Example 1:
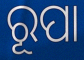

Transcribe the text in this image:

ରୂପା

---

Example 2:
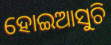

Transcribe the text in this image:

ହୋଇଆସୁଚି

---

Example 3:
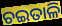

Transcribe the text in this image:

ଚଇତାଳି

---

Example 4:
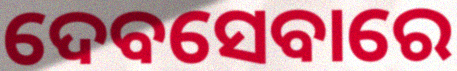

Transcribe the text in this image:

ଦେବସେବାରେ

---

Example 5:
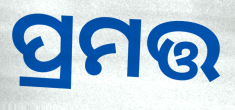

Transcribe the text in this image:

ପ୍ରମତ୍ତ